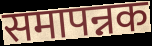
समापन्नक